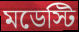
মডেস্টি